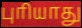
புரியாது